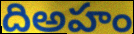
దిఅహం